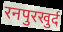
रनपुरखुर्द